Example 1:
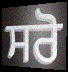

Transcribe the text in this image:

ਸਰੋ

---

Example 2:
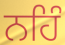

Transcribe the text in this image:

ਨਹਿੰ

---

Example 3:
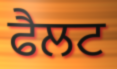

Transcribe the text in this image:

ਫੈਲਟ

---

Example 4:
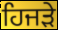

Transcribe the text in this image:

ਹਿਜੜੇ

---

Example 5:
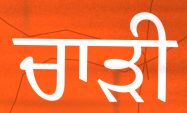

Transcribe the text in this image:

ਚਾਡ਼ੀ